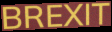
BREXIT